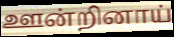
ஊன்றினாய்